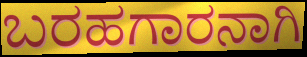
ಬರಹಗಾರನಾಗಿ